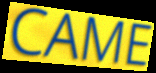
CAME